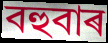
বহুবাৰ